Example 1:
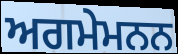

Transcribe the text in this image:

ਅਗਮੇਮਨਨ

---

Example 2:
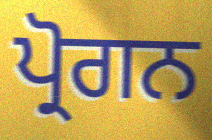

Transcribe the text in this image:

ਪ੍ਰੋਗਨ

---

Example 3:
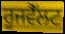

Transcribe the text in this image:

ਰੂਜਵੈੱਲਟ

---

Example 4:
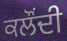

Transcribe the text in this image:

ਕਲੌਂਦੀ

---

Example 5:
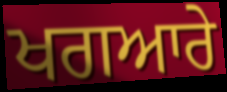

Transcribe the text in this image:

ਖਗਆਰੇ